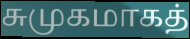
சுமுகமாகத்